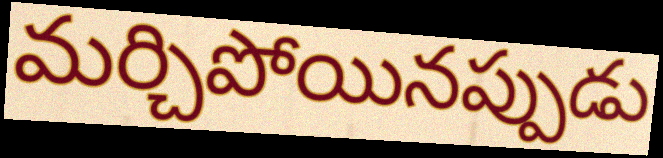
మర్చిపోయినప్పుడు